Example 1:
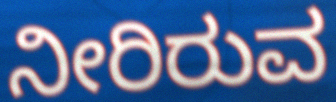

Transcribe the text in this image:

ನೀರಿರುವ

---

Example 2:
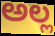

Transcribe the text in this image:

ಅಲ್ಲ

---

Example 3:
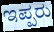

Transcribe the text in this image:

ಇಪ್ಪರು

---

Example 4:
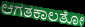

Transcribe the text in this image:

ಆಗತಕಾಲತೋ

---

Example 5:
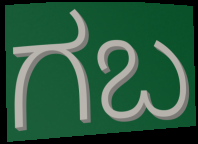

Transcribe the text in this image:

ಗಬ